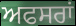
ਅਫਸਰਾਂ